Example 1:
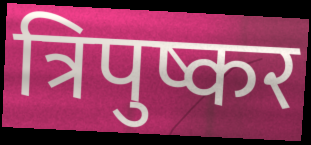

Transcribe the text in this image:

त्रिपुष्कर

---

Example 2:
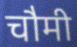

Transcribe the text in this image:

चौमी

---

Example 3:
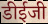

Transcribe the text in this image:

डीईजी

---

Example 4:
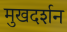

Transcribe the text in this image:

मुखदर्शन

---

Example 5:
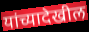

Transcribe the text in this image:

यांच्यादेखील